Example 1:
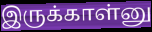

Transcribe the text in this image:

இருக்காள்னு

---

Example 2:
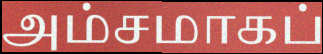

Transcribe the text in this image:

அம்சமாகப்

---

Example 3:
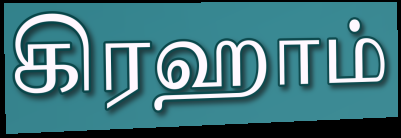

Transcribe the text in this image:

கிரஹாம்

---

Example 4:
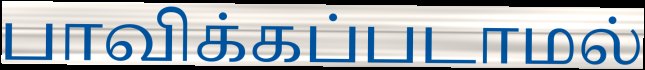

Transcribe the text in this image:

பாவிக்கப்படாமல்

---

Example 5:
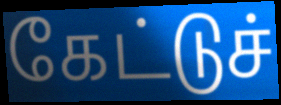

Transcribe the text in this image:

கேட்டுச்